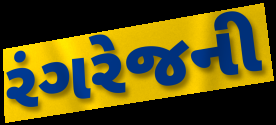
રંગરેજની